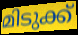
മിടുക്ക്